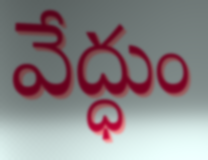
వేద్ధుం